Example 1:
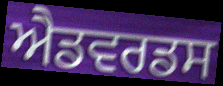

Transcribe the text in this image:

ਐਡਵਰਡਸ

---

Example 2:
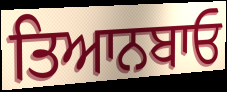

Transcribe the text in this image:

ਤਿਆਨਬਾਓ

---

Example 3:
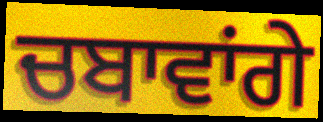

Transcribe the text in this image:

ਚਬਾਵਾਂਗੇ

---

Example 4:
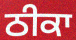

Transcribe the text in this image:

ਠੀਕਾ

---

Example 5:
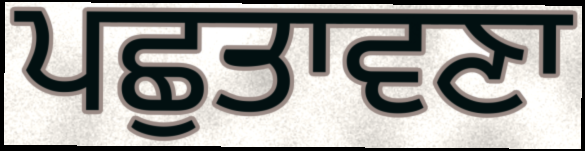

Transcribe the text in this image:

ਪਛੁਤਾਵਣਾ